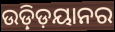
ଉଡ଼୍ଡ଼ିୟାନର